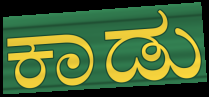
ಕಾಡು